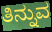
ತಿನ್ನುವ